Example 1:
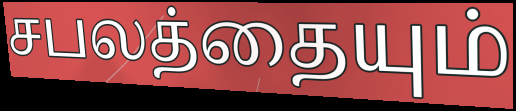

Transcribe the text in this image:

சபலத்தையும்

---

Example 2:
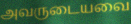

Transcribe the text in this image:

அவருடையவை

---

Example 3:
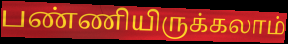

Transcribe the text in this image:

பண்ணியிருக்கலாம்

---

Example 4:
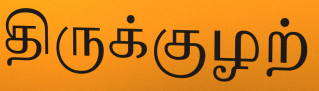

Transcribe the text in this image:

திருக்குழற்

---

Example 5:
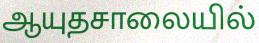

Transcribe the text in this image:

ஆயுதசாலையில்